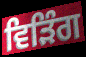
ਵਿੜਿੰਗ